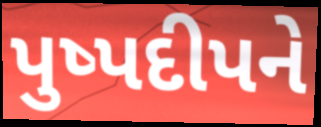
પુષ્પદીપને